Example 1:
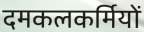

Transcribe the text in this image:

दमकलकर्मियों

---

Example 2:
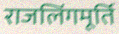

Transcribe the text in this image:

राजलिंगमूर्ति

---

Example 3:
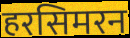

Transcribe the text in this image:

हरसिमरन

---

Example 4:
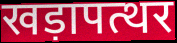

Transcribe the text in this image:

खड़ापत्थर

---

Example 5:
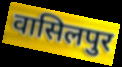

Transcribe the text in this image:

वासिलपुर